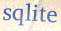
sqlite